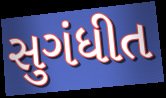
સુગંધીત